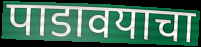
पाडावयाचा